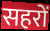
सहरों